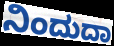
ನಿಂದುದಾ